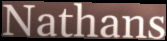
Nathans